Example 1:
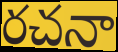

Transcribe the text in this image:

రచనా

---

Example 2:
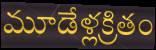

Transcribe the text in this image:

మూడేళ్లక్రితం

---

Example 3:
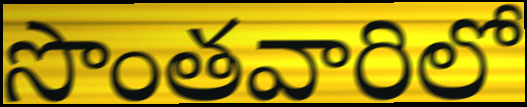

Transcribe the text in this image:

సొంతవారిలో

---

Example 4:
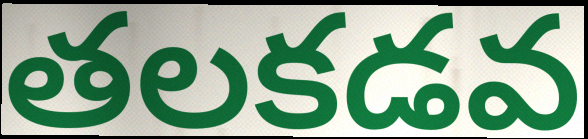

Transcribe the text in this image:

తలకడవ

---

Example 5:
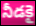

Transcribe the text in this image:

నీడకై